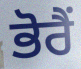
ਭੋਰੈਂ